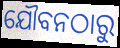
ଯୌବନଠାରୁ